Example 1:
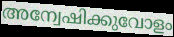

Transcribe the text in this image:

അന്വേഷിക്കുവോളം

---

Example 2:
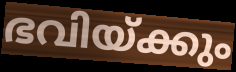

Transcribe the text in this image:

ഭവിയ്ക്കും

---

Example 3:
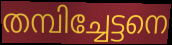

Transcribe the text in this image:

തമ്പിച്ചേട്ടനെ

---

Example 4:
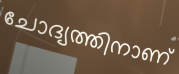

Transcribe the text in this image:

ചോദ്യത്തിനാണ്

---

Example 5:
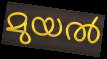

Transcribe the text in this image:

മുയൽ